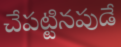
చేపట్టినపుడే